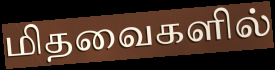
மிதவைகளில்